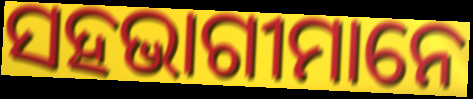
ସହଭାଗୀମାନେ